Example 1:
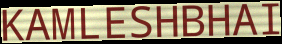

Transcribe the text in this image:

KAMLESHBHAI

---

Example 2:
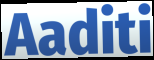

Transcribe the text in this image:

Aaditi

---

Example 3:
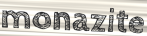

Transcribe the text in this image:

monazite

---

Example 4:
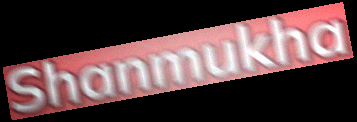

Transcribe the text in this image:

Shanmukha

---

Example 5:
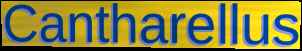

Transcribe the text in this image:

Cantharellus